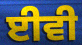
ਈਵੀ